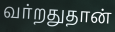
வர்றதுதான்